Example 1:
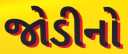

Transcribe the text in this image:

જોડીનો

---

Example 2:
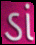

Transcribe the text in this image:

ડાં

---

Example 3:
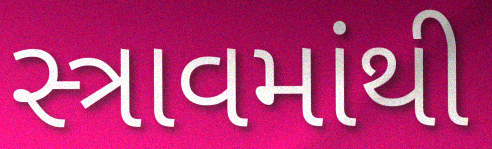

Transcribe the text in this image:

સ્ત્રાવમાંથી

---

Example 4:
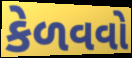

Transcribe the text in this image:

કેળવવો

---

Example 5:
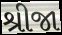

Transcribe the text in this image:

શ્રીજા